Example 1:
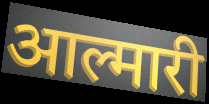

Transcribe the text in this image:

आल्मारी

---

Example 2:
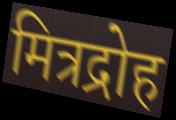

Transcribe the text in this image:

मित्रद्रोह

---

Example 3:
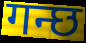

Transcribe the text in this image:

गन्छ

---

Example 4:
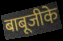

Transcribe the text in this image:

बाबूजीके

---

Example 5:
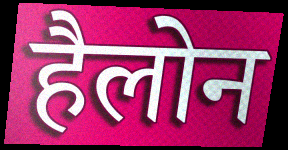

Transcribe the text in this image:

हैलोन